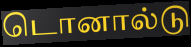
டொனால்டு